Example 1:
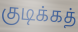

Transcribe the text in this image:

குடிக்கத்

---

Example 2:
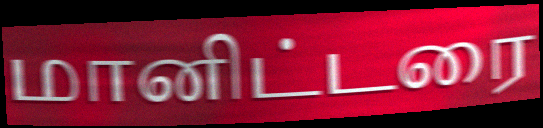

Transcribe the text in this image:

மானிட்டரை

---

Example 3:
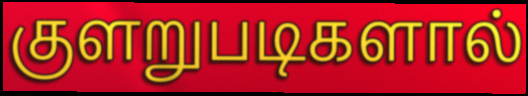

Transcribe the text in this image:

குளறுபடிகளால்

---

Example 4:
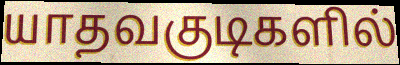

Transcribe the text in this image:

யாதவகுடிகளில்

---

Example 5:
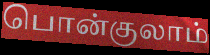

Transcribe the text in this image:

பொன்குலாம்